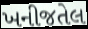
ખનીજતેલ